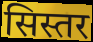
सिस्तर